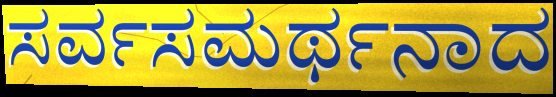
ಸರ್ವಸಮರ್ಥನಾದ